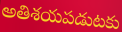
అతిశయపడుటకు